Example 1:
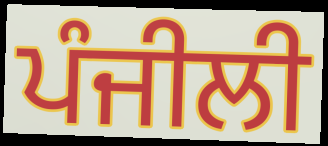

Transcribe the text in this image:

ਪੰਜੀਲੀ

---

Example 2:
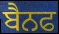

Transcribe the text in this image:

ਬੈਨਫ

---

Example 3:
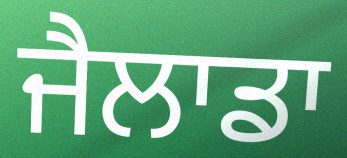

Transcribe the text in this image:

ਜੈਲਾਡਾ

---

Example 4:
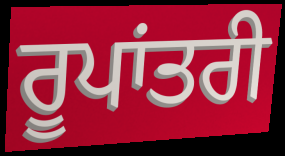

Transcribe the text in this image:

ਰੂਪਾਂਤਰੀ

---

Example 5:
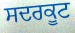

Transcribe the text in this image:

ਸਦਰਕੂਟ